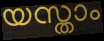
യസ്താം